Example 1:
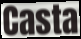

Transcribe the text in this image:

Casta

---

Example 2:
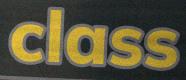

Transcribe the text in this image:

class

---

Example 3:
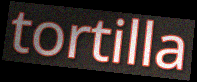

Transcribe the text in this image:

tortilla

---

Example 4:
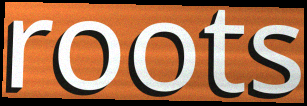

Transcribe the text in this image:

roots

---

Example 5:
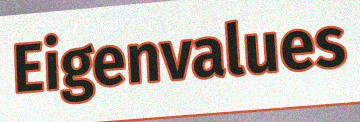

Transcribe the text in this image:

Eigenvalues